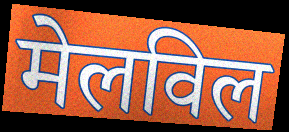
मेलविल